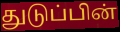
துடுப்பின்